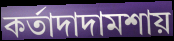
কর্তাদাদামশায়